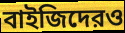
বাইজিদেরও